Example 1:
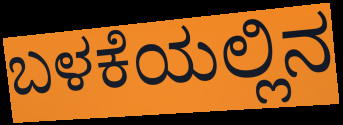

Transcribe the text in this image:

ಬಳಕೆಯಲ್ಲಿನ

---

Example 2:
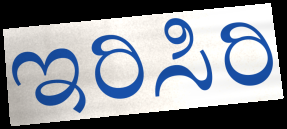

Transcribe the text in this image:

ಇರಿಸಿರಿ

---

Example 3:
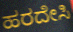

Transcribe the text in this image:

ಹರದೇಸಿ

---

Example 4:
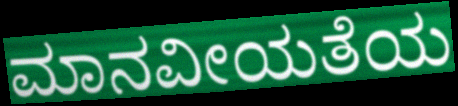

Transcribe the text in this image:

ಮಾನವೀಯತೆಯ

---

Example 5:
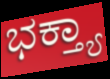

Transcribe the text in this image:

ಭಕ್ತ್ಯಾ